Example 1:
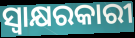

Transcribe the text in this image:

ସ୍ୱାକ୍ଷରକାରୀ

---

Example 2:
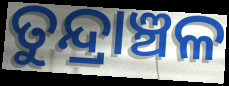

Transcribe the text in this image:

ତୁନ୍ଦ୍ରାଞ୍ଚଳ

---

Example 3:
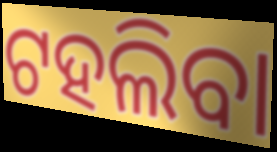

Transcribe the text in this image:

ଟହଲିବା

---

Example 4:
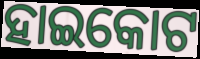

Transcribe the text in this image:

ହାଇକୋଟ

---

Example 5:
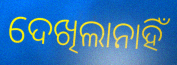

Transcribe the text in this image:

ଦେଖିଲାନାହିଁ